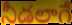
నీడలాగే